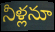
నీళ్లనూ